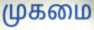
முகமை